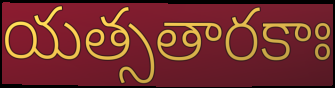
యత్సతారకాః